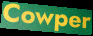
Cowper